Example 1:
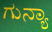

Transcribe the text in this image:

ಗುನ್ಯಾ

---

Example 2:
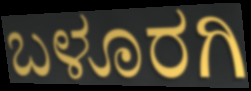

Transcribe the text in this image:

ಬಳೂರಗಿ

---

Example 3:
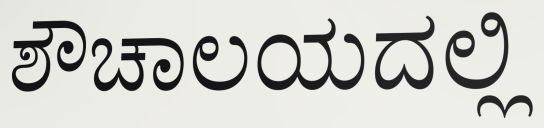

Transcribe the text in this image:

ಶೌಚಾಲಯದಲ್ಲಿ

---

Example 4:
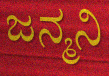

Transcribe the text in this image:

ಜನ್ಮನಿ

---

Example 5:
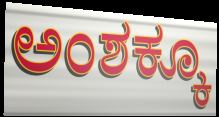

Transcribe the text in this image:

ಅಂಶಕ್ಕೂ